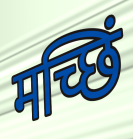
मच्छिं